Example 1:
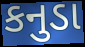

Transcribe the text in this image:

કનુડા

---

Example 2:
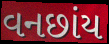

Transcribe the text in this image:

વનછાંય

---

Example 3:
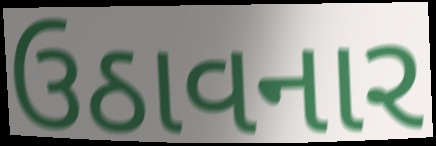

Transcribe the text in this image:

ઉઠાવનાર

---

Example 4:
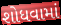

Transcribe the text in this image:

શોધવામાં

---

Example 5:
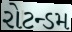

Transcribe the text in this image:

રોટન્ડમ